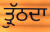
ਤ੍ਰੁੱਠਦਾ